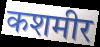
कशमीर